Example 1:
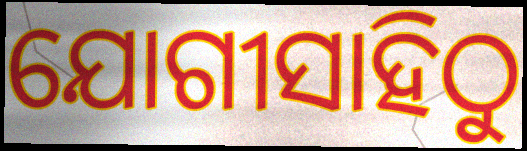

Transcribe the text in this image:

ଯୋଗୀସାହିଠୁ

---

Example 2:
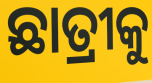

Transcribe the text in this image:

ଛାତ୍ରୀକୁ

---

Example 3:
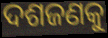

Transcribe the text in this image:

ଦଶଜଣକୁ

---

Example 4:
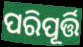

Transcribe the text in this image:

ପରିପୂର୍ତ୍ତି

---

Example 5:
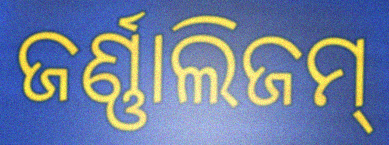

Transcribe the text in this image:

ଜର୍ଣ୍ଣାଲିଜମ୍